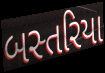
બસ્તરિયા